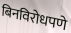
बिनविरोधपणे